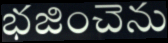
భజించెను